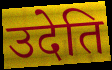
उदेति